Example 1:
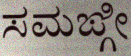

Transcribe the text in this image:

ಸಮಙ್ಗೀ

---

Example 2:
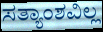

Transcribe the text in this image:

ಸತ್ಯಾಂಶವಿಲ್ಲ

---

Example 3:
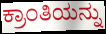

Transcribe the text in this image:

ಕ್ರಾಂತಿಯನ್ನು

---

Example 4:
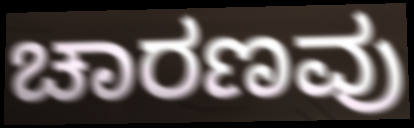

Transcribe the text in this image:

ಚಾರಣವು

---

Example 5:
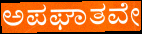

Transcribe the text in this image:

ಅಪಘಾತವೇ